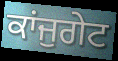
ਕਾਂਜੁਗੇਟ